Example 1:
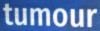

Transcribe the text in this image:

tumour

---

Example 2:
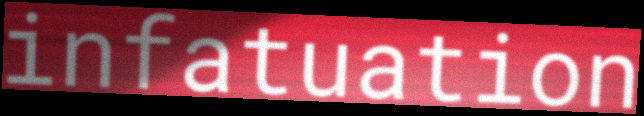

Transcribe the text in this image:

infatuation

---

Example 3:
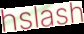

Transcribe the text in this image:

hslash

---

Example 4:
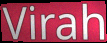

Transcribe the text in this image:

Virah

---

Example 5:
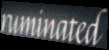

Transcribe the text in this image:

ruminated